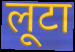
लूटा